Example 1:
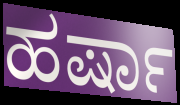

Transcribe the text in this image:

ಹರ್ಷಾ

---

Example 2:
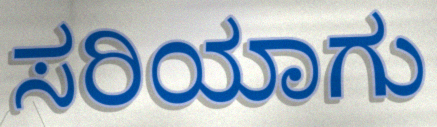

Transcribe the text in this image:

ಸರಿಯಾಗು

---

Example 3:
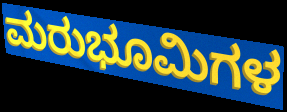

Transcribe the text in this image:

ಮರುಭೂಮಿಗಳ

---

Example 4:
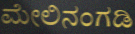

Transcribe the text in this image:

ಮೇಲಿನಂಗಡಿ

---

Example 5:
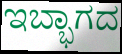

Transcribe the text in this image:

ಇಬ್ಭಾಗದ